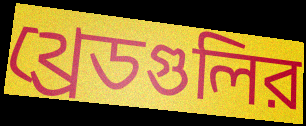
থ্রেডগুলির